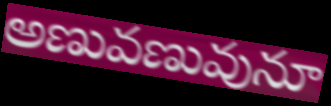
అణువణువునూ